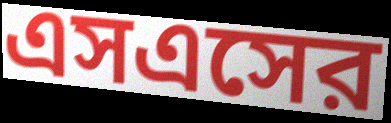
এসএসের